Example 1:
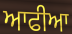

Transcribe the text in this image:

ਆਫੀਆ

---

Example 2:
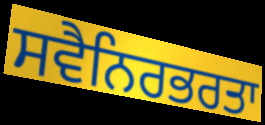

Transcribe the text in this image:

ਸਵੈਨਿਰਭਰਤਾ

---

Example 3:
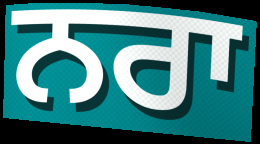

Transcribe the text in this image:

ਨਰਾ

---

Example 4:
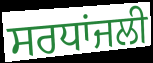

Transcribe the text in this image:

ਸਰਧਾਂਜਲੀ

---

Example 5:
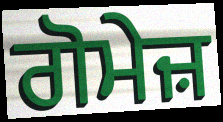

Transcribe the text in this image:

ਗੋਮੇਜ਼